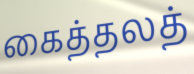
கைத்தலத்